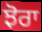
ਝੋਰਾ